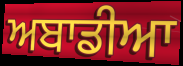
ਅਬਾਡੀਆ